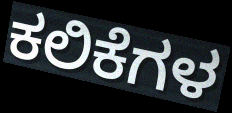
ಕಲಿಕೆಗಳ